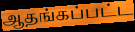
ஆதங்கப்பட்ட